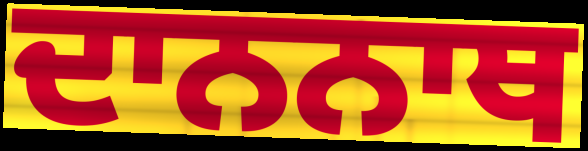
ਦਾਨਨਾਥ